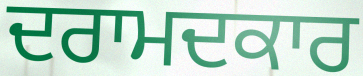
ਦਰਾਮਦਕਾਰ